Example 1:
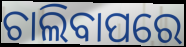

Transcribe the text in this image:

ଚାଲିବାପରେ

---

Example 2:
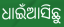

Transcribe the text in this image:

ଧାଇଁଆସିଛୁ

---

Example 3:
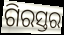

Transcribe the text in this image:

ଗିରସ୍ତର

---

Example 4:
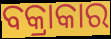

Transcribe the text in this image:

ବକ୍ରାକାର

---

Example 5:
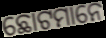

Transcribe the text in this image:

ଛୋଟମାନେ